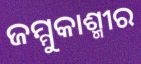
ଜମ୍ମୁକାଶ୍ମୀର